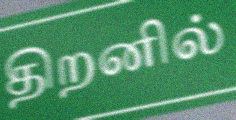
திறனில்